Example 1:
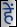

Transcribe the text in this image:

हें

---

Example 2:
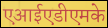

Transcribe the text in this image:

एआईएडीएमके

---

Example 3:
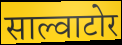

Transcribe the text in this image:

साल्वाटोर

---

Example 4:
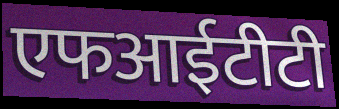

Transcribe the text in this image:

एफआईटीटी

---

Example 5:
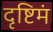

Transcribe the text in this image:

दृष्टिमं